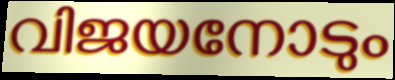
വിജയനോടും